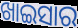
ଖାଇସାର